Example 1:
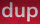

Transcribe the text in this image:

dup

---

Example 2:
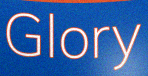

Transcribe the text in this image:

Glory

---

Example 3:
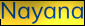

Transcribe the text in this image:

Nayana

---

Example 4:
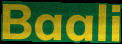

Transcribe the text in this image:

Baali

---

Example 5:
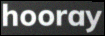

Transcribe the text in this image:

hooray